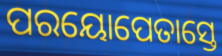
ପରୟୋପେତାସ୍ତେ